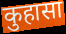
कुहासा